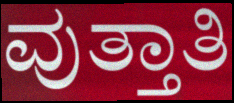
ವುತ್ತಾತಿ